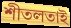
শীতলতাই